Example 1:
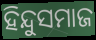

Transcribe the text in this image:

ହିନ୍ଦୁସମାଜ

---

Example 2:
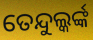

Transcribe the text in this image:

ତେନ୍ଦୁଲ୍କର୍ଙ୍କ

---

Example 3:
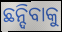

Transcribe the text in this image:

ଛନ୍ଦିବାକୁ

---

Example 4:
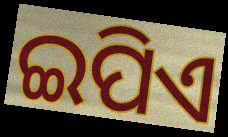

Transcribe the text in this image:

ଇପିଏ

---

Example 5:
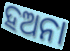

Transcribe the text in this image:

ହଅନା